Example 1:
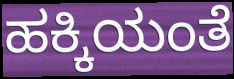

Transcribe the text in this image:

ಹಕ್ಕಿಯಂತೆ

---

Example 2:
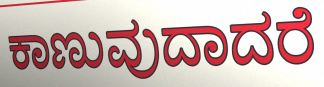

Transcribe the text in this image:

ಕಾಣುವುದಾದರೆ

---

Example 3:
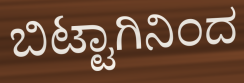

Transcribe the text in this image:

ಬಿಟ್ಟಾಗಿನಿಂದ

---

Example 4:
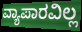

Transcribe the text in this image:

ವ್ಯಾಪಾರವಿಲ್ಲ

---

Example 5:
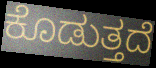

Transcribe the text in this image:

ಕೊಡುತ್ತದೆ